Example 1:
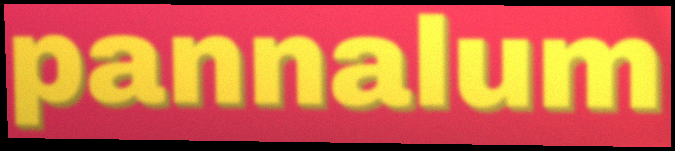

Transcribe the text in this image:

pannalum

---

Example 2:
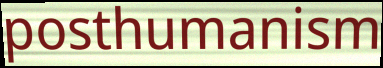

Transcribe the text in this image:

posthumanism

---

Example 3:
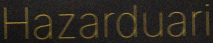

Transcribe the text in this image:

Hazarduari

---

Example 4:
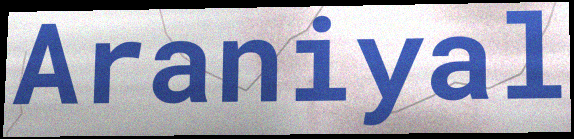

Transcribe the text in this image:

Araniyal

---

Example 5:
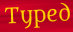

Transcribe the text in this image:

Typed